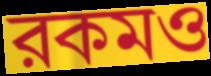
রকমও